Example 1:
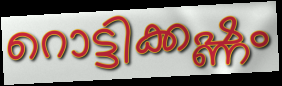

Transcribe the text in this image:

റൊട്ടിക്കഷ്ണം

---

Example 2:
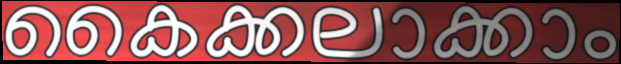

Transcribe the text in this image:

കൈക്കലാക്കാം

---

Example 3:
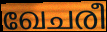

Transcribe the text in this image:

ഖേചരീ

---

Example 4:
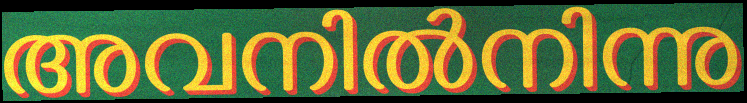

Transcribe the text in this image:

അവനിൽനിന്നു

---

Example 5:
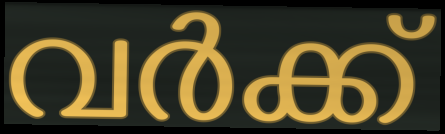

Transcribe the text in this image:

വർക്ക്